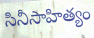
సినీసాహిత్యం